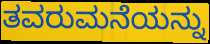
ತವರುಮನೆಯನ್ನು